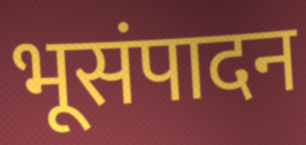
भूसंपादन